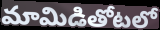
మామిడితోటలో